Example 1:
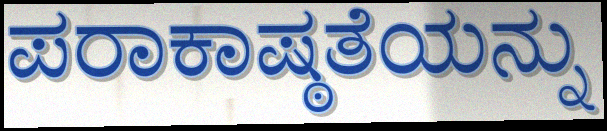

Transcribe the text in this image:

ಪರಾಕಾಷ್ಠತೆಯನ್ನು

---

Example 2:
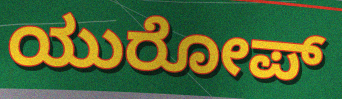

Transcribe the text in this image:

ಯುರೋಪ್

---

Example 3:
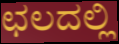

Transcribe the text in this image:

ಛಲದಲ್ಲಿ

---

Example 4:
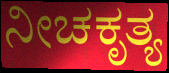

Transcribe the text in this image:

ನೀಚಕೃತ್ಯ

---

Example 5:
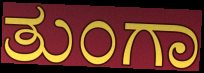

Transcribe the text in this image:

ತುಂಗಾ